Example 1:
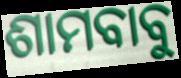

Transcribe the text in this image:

ଶାମବାବୁ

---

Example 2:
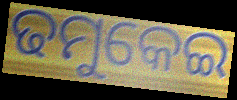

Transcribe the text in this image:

ଢମୁକେଇ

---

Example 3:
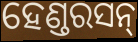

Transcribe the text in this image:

ହେଣ୍ଡରସନ୍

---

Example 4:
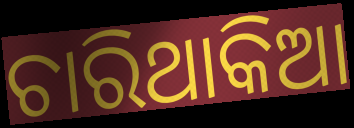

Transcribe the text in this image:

ଚାରିଥାକିଆ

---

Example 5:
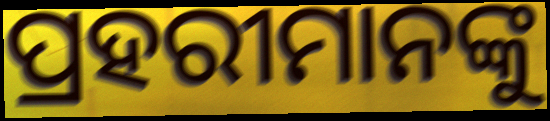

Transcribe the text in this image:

ପ୍ରହରୀମାନଙ୍କୁ